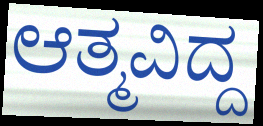
ಆತ್ಮವಿದ್ದ